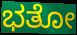
ಭತೋ